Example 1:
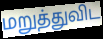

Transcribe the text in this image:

மறுத்துவிட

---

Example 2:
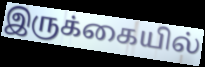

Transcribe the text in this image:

இருக்கையில்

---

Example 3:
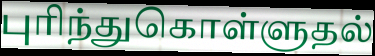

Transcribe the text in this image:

புரிந்துகொள்ளுதல்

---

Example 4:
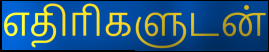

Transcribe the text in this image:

எதிரிகளுடன்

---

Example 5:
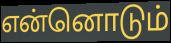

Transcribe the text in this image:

என்னொடும்